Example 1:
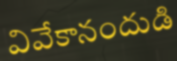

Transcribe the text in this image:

వివేకానందుడి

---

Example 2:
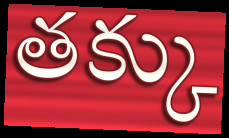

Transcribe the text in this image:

తక్కు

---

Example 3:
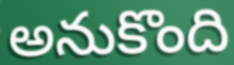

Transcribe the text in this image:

అనుకొంది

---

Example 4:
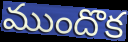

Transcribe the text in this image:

ముందొక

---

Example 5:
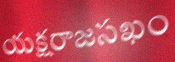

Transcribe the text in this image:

యక్షరాజసఖం